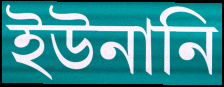
ইউনানি